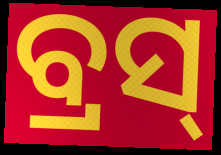
ବ୍ରସ୍